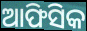
ଆଫିସିକ